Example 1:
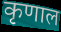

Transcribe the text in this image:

कृणाल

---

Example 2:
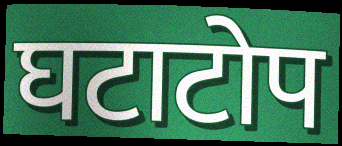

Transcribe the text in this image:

घटाटोप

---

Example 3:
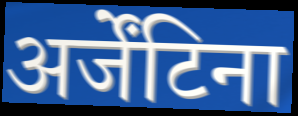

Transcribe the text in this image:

अर्जेंटिना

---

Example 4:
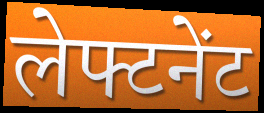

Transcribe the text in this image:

लेफ्टनेंट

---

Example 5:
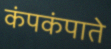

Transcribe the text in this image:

कंपकंपाते